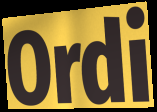
Ordi